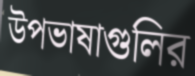
উপভাষাগুলির